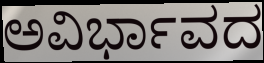
ಅವಿರ್ಭಾವದ